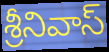
శ్రీనివాస్